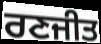
ਰਣਜੀਤ